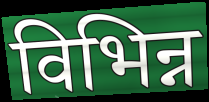
विभिन्न